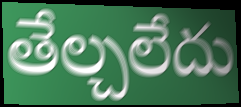
తేల్చలేదు